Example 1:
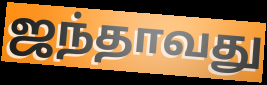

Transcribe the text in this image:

ஜந்தாவது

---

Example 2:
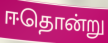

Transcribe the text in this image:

ஈதொன்று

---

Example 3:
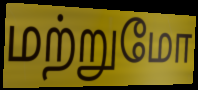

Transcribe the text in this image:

மற்றுமோ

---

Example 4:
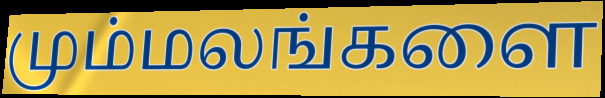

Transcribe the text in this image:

மும்மலங்களை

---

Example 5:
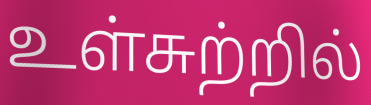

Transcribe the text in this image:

உள்சுற்றில்